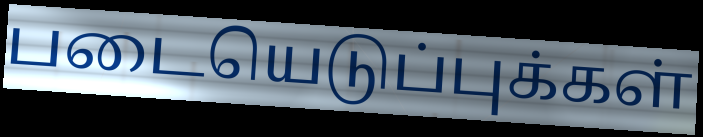
படையெடுப்புக்கள்